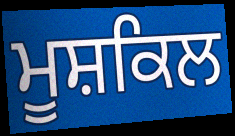
ਮੂਸ਼ਕਿਲ